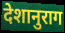
देशानुराग